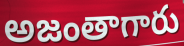
అజంతాగారు